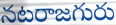
నటరాజగురు